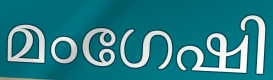
മംഗേഷി